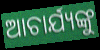
ଆଚାର୍ଯ୍ୟଙ୍କୁ